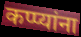
कप्प्यांना